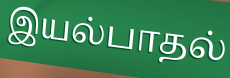
இயல்பாதல்